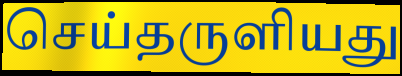
செய்தருளியது